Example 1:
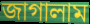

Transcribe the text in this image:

জাগালাম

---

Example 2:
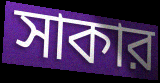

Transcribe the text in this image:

সাকার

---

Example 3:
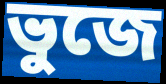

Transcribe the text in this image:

ভুজে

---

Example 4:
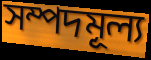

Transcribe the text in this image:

সম্পদমূল্য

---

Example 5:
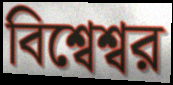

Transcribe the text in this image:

বিশ্বেশ্বর